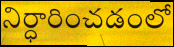
నిర్ధారించడంలో